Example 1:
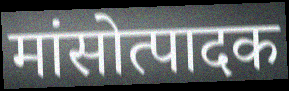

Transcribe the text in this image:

मांसोत्पादक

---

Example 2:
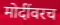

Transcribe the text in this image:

मोदींवरच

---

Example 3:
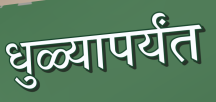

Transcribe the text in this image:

धुळ्यापर्यंत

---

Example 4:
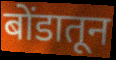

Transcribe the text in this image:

बोंडातून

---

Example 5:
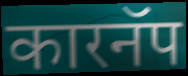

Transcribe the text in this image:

कारनॅप